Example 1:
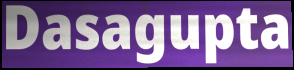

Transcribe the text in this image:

Dasagupta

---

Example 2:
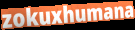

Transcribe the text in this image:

zokuxhumana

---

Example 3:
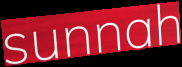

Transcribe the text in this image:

sunnah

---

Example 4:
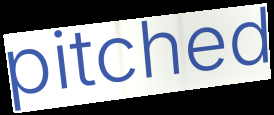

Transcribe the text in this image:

pitched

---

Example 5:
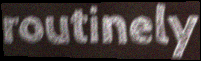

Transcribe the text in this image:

routinely